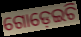
ଗୋଡ଼େଇଚି